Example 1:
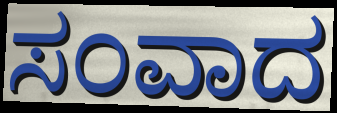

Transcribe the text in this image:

ಸಂವಾದ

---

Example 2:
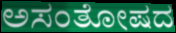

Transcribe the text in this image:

ಅಸಂತೋಷದ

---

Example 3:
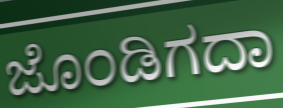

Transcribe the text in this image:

ಜೊಂಡಿಗದಾ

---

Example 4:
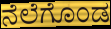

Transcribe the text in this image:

ನೆಲೆಗೊಂಡ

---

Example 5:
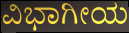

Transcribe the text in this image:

ವಿಭಾಗೀಯ